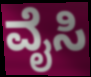
ವೈಸಿ